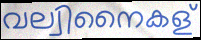
വല്വിനൈകള്